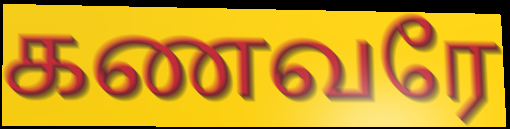
கணவரே